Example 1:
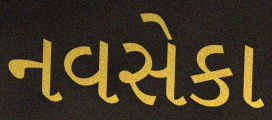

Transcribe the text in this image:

નવસેકા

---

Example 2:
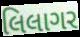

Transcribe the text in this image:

લિલાગર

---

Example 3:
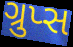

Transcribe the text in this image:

ગ્રુપ્સ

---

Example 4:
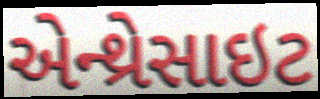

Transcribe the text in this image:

એન્થ્રેસાઇટ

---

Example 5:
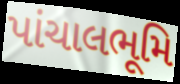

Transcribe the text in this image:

પાંચાલભૂમિ